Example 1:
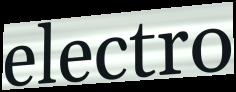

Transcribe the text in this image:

electro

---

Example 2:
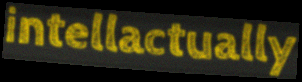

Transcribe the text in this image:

intellactually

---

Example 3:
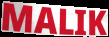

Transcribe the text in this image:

MALIK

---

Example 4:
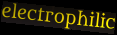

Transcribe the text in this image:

electrophilic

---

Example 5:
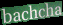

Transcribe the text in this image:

bachcha